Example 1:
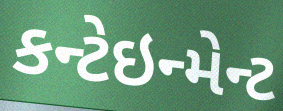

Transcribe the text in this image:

કન્ટેઇન્મેન્ટ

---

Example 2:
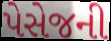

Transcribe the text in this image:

પેસેજની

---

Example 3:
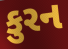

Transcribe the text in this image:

કુરન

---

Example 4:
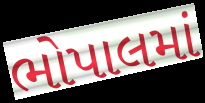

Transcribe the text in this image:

ભોપાલમાં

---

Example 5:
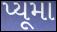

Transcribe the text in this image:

પ્યૂમા